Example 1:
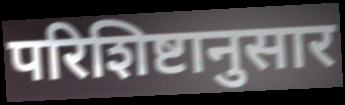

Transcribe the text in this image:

परिशिष्टानुसार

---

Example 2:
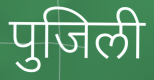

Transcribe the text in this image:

पुजिली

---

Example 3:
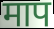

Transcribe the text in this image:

माप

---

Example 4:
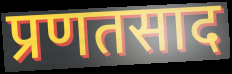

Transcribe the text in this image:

प्रणतसाद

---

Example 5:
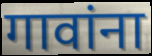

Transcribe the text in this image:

गावांना